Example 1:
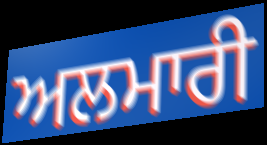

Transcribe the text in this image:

ਅਲਮਾਰੀ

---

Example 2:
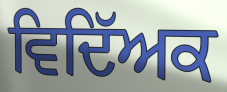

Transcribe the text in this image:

ਵਿਦਿੱਅਕ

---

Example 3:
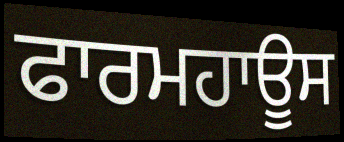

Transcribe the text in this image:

ਫਾਰਮਹਾਊਸ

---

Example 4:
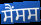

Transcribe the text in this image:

ਸੈਂਸਸ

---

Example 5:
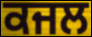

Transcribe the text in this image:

ਕਜਲ